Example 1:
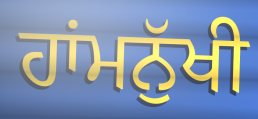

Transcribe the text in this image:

ਹਾਂਮਨੁੱਖੀ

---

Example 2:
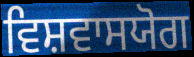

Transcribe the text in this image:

ਵਿਸ਼ਵਾਸਯੋਗ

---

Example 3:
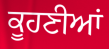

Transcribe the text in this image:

ਕੂਹਣੀਆਂ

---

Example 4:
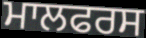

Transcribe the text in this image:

ਮਾਲਫਰਸ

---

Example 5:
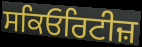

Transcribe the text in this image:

ਸਕਿਓਰਿਟੀਜ਼